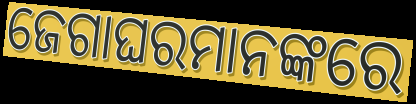
ଜେଗାଘରମାନଙ୍କରେ